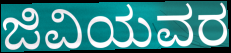
ಜಿವಿಯವರ